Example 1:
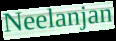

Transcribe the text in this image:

Neelanjan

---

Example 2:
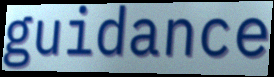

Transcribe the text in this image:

guidance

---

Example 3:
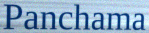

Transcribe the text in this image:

Panchama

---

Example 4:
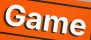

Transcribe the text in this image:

Game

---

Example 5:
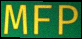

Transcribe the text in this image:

MFP